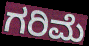
ಗರಿಮೆ